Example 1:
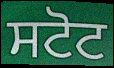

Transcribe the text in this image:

ਸਟੋਟ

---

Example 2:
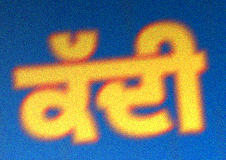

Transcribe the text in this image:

ਕੱਦੀ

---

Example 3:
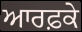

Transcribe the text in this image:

ਆਰਫ਼ਕੇ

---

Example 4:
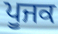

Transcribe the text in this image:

ਪੂਜਕ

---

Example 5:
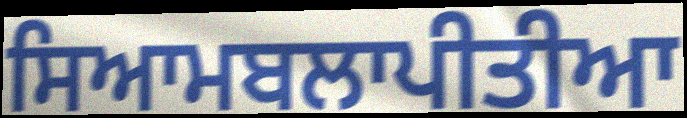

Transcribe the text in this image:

ਸਿਆਮਬਲਾਪੀਤੀਆ